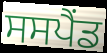
ਸਸਪੈੰਡ